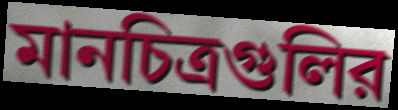
মানচিত্রগুলির